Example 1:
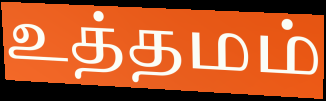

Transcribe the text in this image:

உத்தமம்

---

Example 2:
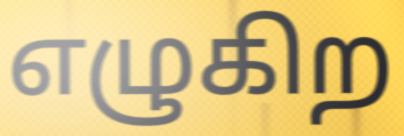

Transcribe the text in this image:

எழுகிற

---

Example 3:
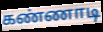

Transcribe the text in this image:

கண்ணாடி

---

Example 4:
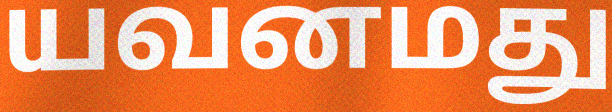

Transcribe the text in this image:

யவனமது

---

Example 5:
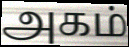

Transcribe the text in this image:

அகம்